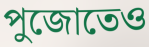
পুজোতেও